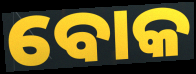
ବୋକ